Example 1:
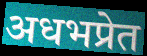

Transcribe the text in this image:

अधभप्रेत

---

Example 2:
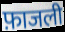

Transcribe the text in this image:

फ़ाजली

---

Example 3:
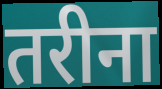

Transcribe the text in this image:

तरीना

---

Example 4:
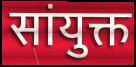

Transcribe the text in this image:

सांयुक्त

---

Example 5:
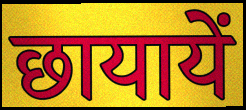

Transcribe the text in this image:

छायायें